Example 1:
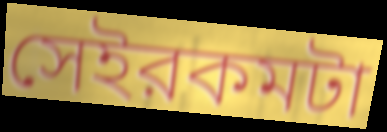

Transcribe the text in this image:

সেইরকমটা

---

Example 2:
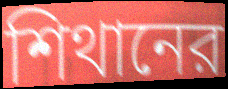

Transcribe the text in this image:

শিথানের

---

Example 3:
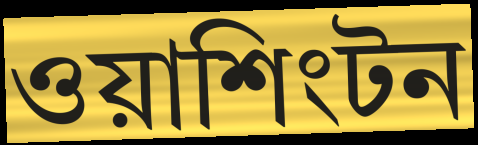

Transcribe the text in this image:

ওয়াশিংটন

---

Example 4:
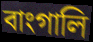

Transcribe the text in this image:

বাংগালি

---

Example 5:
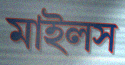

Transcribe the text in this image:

মাইলস